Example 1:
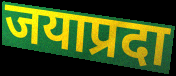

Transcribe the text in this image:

जयाप्रदा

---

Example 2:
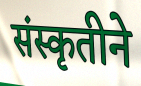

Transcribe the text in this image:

संस्कृतीने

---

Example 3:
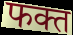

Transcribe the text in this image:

फक्त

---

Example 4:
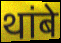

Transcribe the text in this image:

थांबे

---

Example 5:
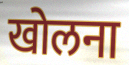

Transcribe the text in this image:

खोलना